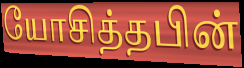
யோசித்தபின்